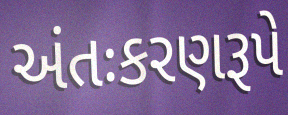
અંતઃકરણરૂપે